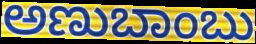
ಅಣುಬಾಂಬು